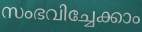
സംഭവിച്ചേക്കാം